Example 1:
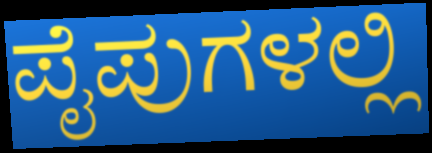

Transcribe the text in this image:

ಪೈಪುಗಳಲ್ಲಿ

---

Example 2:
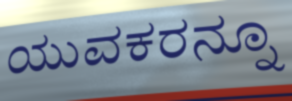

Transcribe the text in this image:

ಯುವಕರನ್ನೂ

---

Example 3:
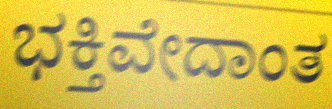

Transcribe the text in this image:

ಭಕ್ತಿವೇದಾಂತ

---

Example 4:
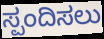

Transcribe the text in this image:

ಸ್ಪಂದಿಸಲು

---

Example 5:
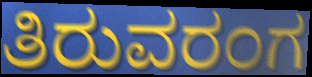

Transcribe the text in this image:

ತಿರುವರಂಗ